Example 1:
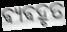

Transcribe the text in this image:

ଵ୍ଯଵହୃତ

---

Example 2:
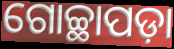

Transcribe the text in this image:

ଗୋଚ୍ଛାପଡ଼ା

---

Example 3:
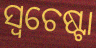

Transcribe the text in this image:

ସ୍ଵଚେଷ୍ଟା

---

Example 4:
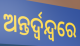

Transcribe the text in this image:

ଅନ୍ତର୍ଦ୍ୱନ୍ଦ୍ୱରେ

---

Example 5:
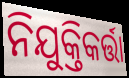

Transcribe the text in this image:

ନିଯୁକ୍ତିକର୍ତ୍ତା